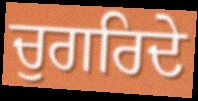
ਚੁਗਰਿਦੇ